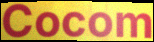
Cocom